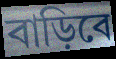
বাড়িবে